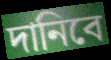
দানিবে